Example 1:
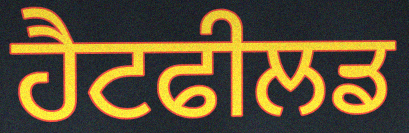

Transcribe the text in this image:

ਹੈਟਫੀਲਡ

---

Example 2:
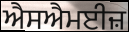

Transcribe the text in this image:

ਐਸਐਮਈਜ਼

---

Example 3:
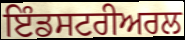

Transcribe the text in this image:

ਇੰਡਸਟਰੀਅਰਲ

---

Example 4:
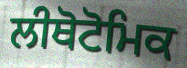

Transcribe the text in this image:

ਲੀਥੋਟੋਮਿਕ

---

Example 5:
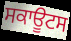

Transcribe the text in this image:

ਸਕਾਊਟਸ